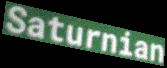
Saturnian